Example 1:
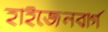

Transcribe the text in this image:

হাইজেনবাৰ্গ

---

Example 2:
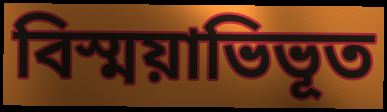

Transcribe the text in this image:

বিস্ময়াভিভূত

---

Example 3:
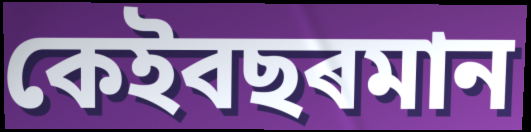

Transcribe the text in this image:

কেইবছৰমান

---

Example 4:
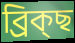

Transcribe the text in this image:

ব্ৰিক্‌ছ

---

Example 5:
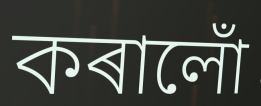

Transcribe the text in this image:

কৰালোঁ